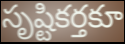
సృష్టికర్తకూ